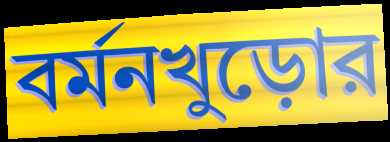
বর্মনখুড়োর